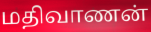
மதிவாணன்